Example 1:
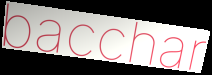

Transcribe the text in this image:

bacchar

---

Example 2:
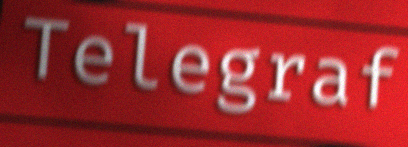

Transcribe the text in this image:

Telegraf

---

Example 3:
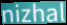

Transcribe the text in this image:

nizhal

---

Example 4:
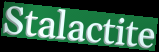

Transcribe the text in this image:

Stalactite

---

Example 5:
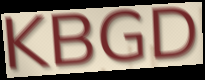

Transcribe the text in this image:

KBGD